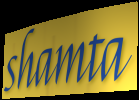
shamta